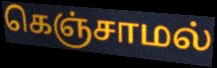
கெஞ்சாமல்